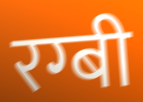
रग्‍बी